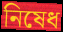
নিষেধ